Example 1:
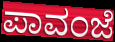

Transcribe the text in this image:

ಪಾವಂಜೆ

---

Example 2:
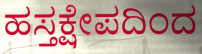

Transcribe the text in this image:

ಹಸ್ತಕ್ಷೇಪದಿಂದ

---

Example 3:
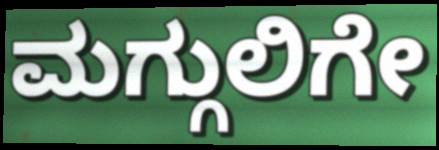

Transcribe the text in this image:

ಮಗ್ಗುಲಿಗೇ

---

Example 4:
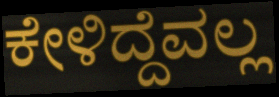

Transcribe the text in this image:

ಕೇಳಿದ್ದೆವಲ್ಲ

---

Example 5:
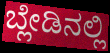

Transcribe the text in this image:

ಬ್ಲೇಡಿನಲ್ಲಿ